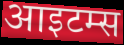
आइटम्स